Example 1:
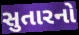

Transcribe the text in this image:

સુતારનો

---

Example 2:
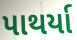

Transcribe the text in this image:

પાથર્યા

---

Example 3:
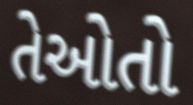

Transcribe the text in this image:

તેઓતો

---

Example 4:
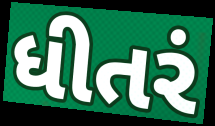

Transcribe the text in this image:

ધીતરં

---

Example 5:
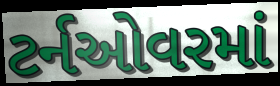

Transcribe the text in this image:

ટર્નઓવરમાં